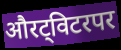
औरट्विटरपर